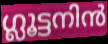
ഗ്ലൂട്ടനിൻ